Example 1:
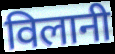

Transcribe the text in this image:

विलानी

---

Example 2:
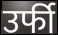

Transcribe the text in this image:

उर्फी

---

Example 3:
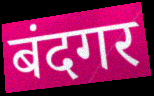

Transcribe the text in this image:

बंदगर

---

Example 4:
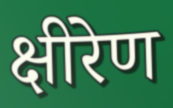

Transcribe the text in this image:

क्षीरेण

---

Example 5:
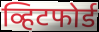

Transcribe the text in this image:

व्हिटफोर्ड